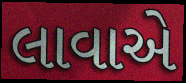
લાવાએ